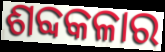
ଶବ୍ଦକଳାର